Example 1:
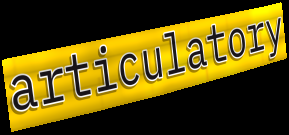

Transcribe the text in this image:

articulatory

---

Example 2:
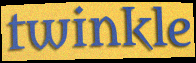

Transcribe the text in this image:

twinkle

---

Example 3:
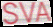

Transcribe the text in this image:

SVA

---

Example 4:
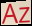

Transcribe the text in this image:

Az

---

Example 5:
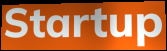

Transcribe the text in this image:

Startup